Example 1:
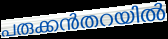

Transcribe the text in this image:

പരുക്കൻതറയിൽ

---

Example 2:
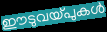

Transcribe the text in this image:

ഈടുവയ്പുകൾ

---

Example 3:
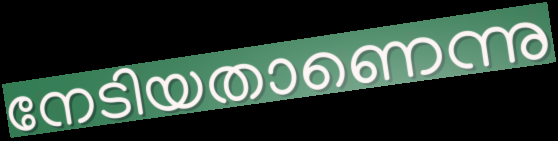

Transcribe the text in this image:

നേടിയതാണെന്നു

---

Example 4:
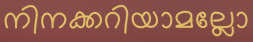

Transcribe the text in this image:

നിനക്കറിയാമല്ലോ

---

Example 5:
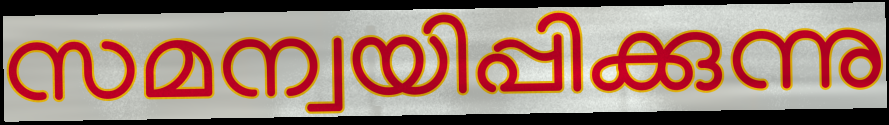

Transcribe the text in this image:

സമന്വയിപ്പിക്കുന്നു